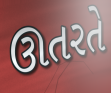
ઊતરતે